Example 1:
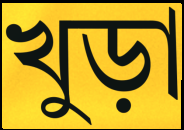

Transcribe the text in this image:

খুড়া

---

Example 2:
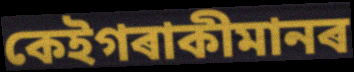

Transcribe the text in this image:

কেইগৰাকীমানৰ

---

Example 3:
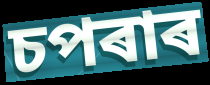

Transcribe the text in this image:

চপৰাৰ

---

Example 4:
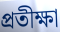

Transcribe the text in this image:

প্ৰতীক্ষা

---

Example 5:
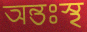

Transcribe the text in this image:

অন্তঃস্থ